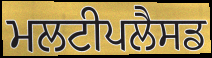
ਮਲਟੀਪਲੈਸਡ